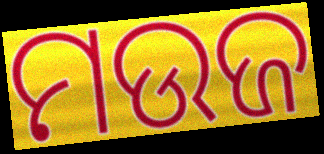
ମଉଜ